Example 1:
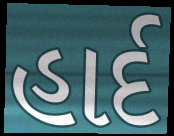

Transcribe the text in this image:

હાર્દ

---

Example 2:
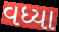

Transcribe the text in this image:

વધ્યા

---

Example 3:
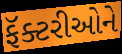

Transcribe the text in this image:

ફૅક્ટરીઓને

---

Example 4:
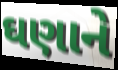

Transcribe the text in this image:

ઘણાને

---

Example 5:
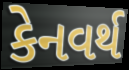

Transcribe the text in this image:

કેનવર્થ